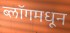
ब्लॉगमधून